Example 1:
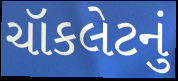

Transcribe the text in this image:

ચૉકલેટનું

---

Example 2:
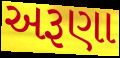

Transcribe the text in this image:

અરૂણા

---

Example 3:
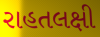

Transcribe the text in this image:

રાહતલક્ષી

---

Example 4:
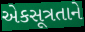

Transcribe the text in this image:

એકસૂત્રતાને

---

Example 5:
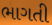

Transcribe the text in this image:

ભાગતી